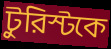
টুরিস্টকে